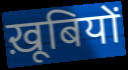
ख़ूबियों